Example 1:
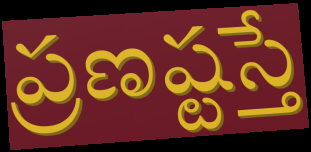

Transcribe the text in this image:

ప్రణష్టస్తే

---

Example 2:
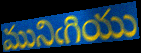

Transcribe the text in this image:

మునిఁగియు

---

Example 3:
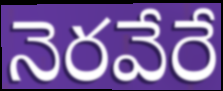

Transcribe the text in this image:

నెరవేరే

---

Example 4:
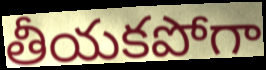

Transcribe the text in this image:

తీయకపోగా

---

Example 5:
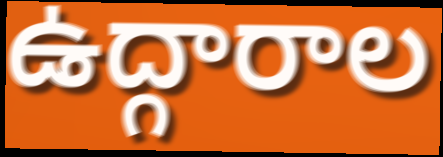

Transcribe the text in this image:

ఉద్గారాల